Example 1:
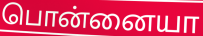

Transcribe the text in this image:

பொன்னையா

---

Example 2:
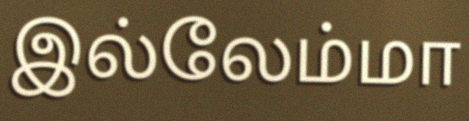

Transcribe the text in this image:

இல்லேம்மா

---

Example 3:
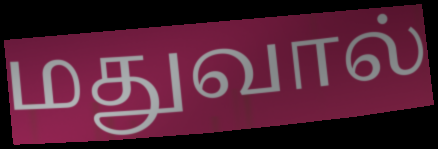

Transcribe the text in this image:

மதுவால்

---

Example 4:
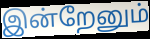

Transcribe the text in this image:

இன்றேனும்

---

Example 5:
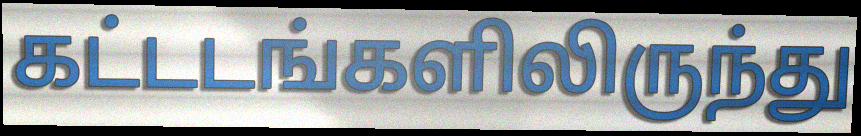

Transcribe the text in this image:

கட்டடங்களிலிருந்து